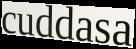
cuddasa